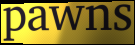
pawns